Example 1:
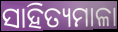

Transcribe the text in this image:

ସାହିତ୍ୟମାଳା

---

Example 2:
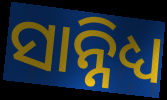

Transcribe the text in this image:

ସାନ୍ନିଧ୍ୟ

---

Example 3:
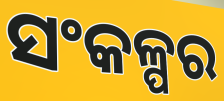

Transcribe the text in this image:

ସଂକଳ୍ପର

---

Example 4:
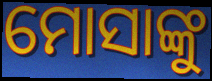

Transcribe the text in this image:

ମୋସାଙ୍କୁ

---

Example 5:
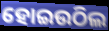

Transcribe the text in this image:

ହୋଇଉଠିଲ